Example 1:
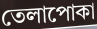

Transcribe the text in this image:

তেলাপোকা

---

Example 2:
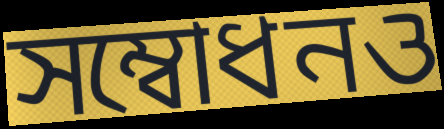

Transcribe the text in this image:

সম্বোধনও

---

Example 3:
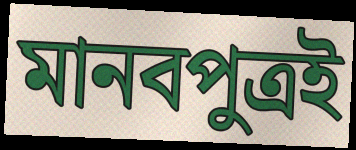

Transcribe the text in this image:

মানবপুত্রই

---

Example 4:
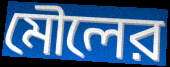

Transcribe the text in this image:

মৌলের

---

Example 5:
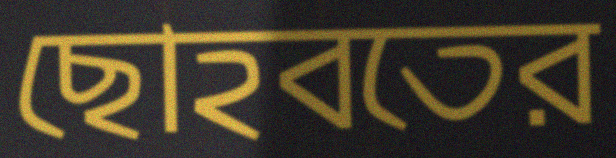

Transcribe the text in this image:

ছোহবতের